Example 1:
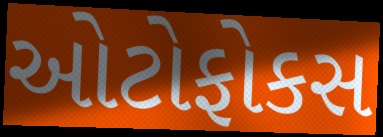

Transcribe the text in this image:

ઓટોફોકસ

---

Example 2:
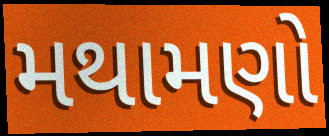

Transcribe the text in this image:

મથામણો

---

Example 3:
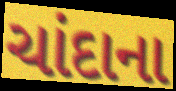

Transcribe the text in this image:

ચાંદાના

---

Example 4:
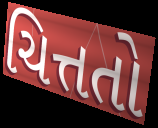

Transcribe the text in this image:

ચિત્તતો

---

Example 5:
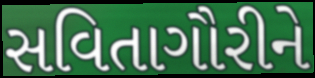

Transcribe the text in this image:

સવિતાગૌરીને